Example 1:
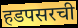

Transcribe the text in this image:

हडपसरची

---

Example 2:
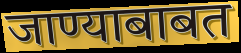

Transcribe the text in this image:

जाण्याबाबत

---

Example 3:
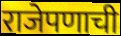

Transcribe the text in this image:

राजेपणाची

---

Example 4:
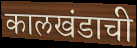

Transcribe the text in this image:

कालखंडाची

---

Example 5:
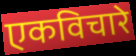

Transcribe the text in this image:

एकविचारे